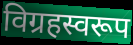
विग्रहस्वरूप